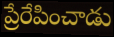
ప్రేరేపించాడు